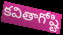
కవితాగోష్టి